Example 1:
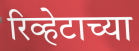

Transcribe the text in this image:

रिव्हेटाच्या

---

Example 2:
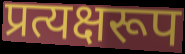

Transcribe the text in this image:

प्रत्यक्षरूप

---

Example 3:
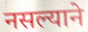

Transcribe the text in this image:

नसल्याने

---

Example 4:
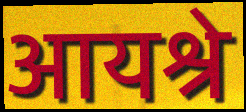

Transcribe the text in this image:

आयश्रे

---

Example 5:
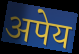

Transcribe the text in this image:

अपेय